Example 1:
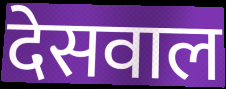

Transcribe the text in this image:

देसवाल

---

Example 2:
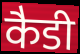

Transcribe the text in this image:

कैडी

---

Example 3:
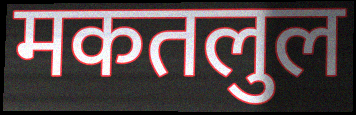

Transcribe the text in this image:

मकतलुल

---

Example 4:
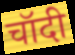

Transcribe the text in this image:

चॉदी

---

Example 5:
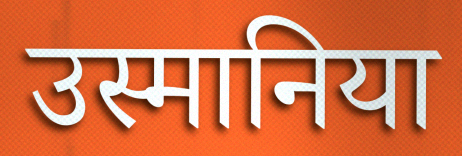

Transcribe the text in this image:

उस्मानिया